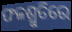
ଫଳଶ୍ରୁତିରେ